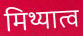
मिथ्यात्व